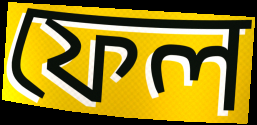
ফেল